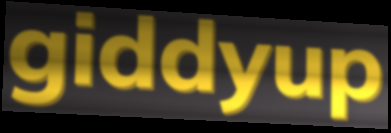
giddyup